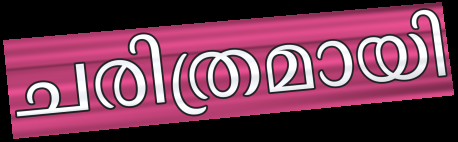
ചരിത്രമായി